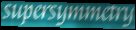
supersymmetry